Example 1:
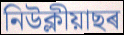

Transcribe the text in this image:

নিউক্লীয়াছৰ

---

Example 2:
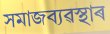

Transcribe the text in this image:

সমাজব্যৱস্থাৰ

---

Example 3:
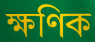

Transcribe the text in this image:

ক্ষণিক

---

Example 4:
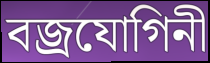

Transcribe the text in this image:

বজ্ৰযোগিনী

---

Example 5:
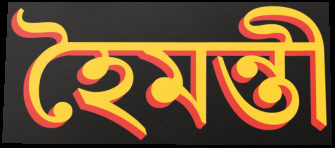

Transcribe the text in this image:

হৈমন্তী